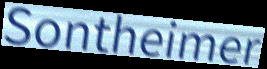
Sontheimer